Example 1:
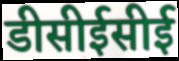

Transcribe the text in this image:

डीसीईसीई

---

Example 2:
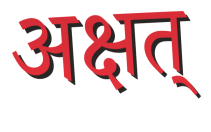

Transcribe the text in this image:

अक्षत्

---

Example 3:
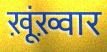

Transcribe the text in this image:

ख़ूंख़्वार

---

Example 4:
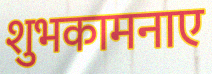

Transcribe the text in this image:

शुभकामनाए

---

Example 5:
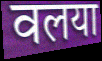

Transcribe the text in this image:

वलया